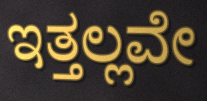
ಇತ್ತಲ್ಲವೇ